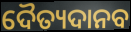
ଦୈତ୍ୟଦାନବ